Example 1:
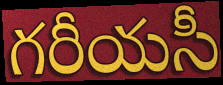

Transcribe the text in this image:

గరీయసీ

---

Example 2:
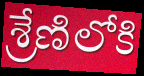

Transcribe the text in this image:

శ్రేణిలోకి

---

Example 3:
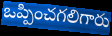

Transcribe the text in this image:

ఒప్పించగలిగారు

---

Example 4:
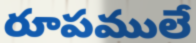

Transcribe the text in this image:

రూపములే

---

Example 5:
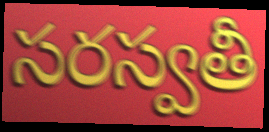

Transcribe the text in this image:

సరస్వతీ